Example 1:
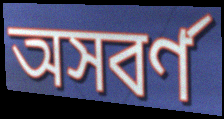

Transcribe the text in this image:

অসবর্ণ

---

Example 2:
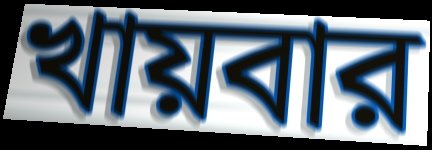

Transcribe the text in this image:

খায়বার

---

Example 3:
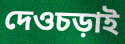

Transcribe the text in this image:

দেওচড়াই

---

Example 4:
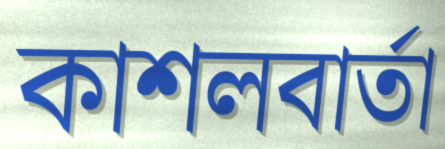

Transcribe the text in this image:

কাশলবার্তা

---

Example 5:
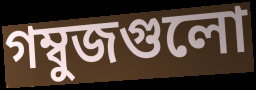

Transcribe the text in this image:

গম্বুজগুলো